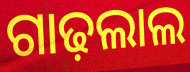
ଗାଢ଼ଲାଲ